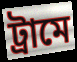
ট্রামে